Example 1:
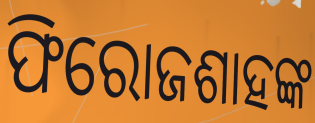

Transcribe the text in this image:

ଫିରୋଜଶାହଙ୍କ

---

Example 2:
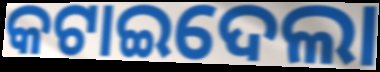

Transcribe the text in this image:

କଟାଇଦେଲା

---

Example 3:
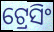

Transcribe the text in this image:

ଟ୍ରେସିଂ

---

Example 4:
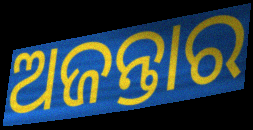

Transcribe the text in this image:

ଅଜନ୍ତାର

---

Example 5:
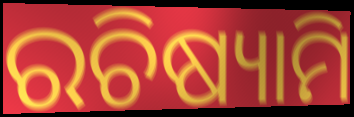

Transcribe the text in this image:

ରଚିଷ୍ୟାମି